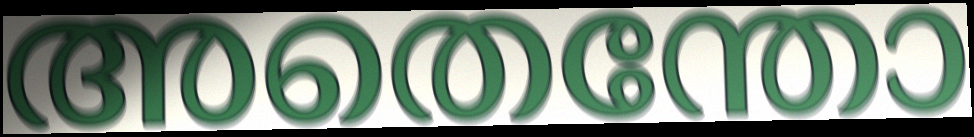
അതെന്തോ